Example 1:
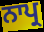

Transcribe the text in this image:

ਨਾਪ੍ਰ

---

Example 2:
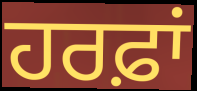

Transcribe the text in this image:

ਹਰਫ਼ਾਂ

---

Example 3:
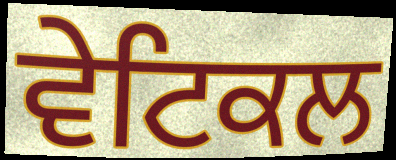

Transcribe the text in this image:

ਵੇਟਿਕਲ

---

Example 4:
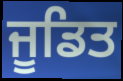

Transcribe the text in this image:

ਜੂਡਿਤ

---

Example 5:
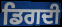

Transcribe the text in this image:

ਡਿਗਦੀ